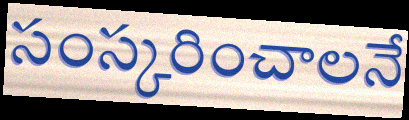
సంస్కరించాలనే